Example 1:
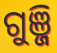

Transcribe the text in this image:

ଗୁଞ୍ଜି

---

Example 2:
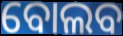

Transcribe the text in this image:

ବୋଲବ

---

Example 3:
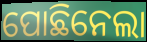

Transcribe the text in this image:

ପୋଛିନେଲା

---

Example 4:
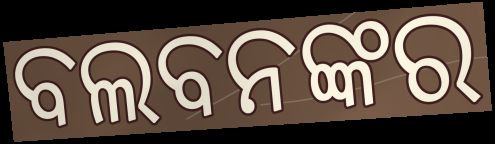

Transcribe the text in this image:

ବଲବନଙ୍କର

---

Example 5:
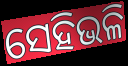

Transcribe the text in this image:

ସେହିଭଳି